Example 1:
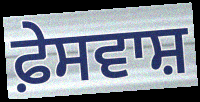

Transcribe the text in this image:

ਫ਼ੇਸਵਾਸ਼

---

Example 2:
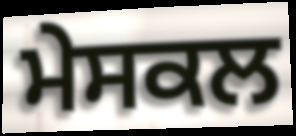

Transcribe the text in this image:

ਮੇਸਕਲ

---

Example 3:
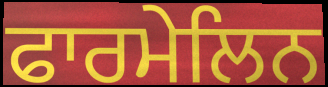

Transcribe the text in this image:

ਫਾਰਮੇਲਿਨ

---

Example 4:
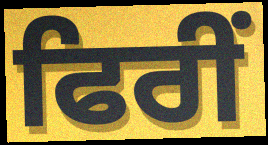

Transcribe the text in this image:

ਫਿਰੀਂ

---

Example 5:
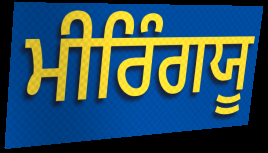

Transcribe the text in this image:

ਮੀਰਿੰਗਯੂ